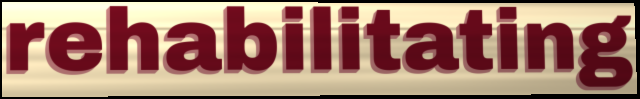
rehabilitating